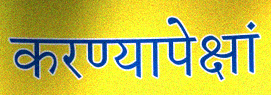
करण्यापेक्षां